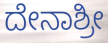
ದೇನಾಶ್ರೀ